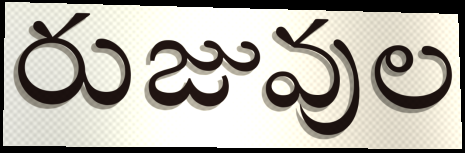
రుజువుల